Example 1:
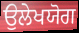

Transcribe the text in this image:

ਉਲੇਖਯੋਗ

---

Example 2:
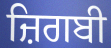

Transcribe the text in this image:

ਜ਼ਿਗਬੀ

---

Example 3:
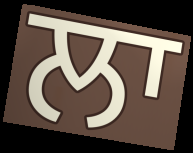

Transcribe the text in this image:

ਲਾ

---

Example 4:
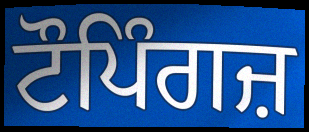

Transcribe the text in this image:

ਟੌਪਿੰਗਜ਼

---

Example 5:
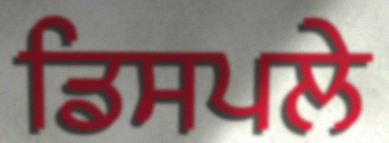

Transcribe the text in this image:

ਡਿਸਪਲੇ